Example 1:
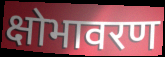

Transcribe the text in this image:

क्षोभावरण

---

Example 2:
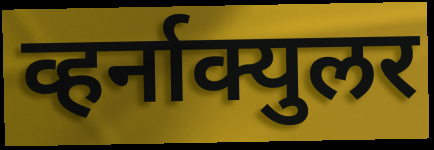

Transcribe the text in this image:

व्हर्नाक्युलर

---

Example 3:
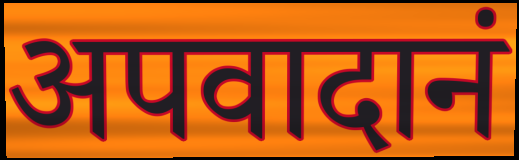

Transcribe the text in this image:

अपवादानं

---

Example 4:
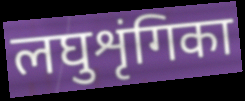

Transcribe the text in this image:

लघुशृंगिका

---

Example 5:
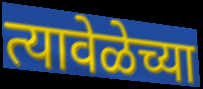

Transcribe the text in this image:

त्यावेळेच्या